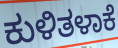
ಕುಳಿತಳಾಕೆ